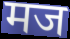
मज